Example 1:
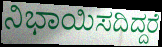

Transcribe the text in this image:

ನಿಭಾಯಿಸದಿದ್ದರೆ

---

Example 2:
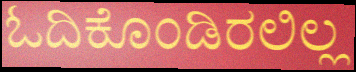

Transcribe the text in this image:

ಓದಿಕೊಂಡಿರಲಿಲ್ಲ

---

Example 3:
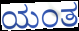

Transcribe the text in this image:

ಯಂತ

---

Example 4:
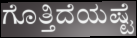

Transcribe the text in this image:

ಗೊತ್ತಿದೆಯಷ್ಟೆ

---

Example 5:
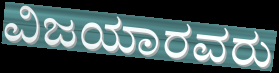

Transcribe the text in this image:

ವಿಜಯಾರವರು